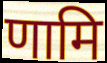
णामि